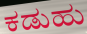
ಕಡುಹು